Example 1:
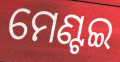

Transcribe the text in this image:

ମେଣ୍ଟଇ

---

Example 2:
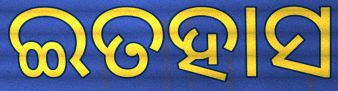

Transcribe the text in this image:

ଇତହାସ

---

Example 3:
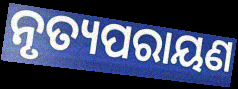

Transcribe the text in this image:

ନୃତ୍ୟପରାୟଣ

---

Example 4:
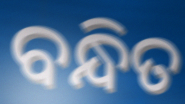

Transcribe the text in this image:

ବନ୍ଧିତ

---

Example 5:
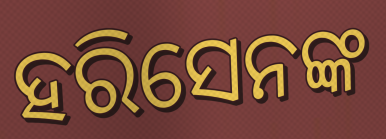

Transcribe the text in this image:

ହରିସେନଙ୍କ